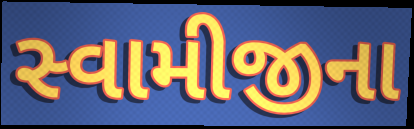
સ્વામીજીના